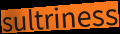
sultriness